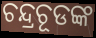
ଚନ୍ଦ୍ରଚୂଡଙ୍କ